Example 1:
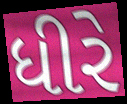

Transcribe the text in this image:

ધીરે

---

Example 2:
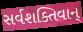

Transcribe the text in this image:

સર્વશક્તિવાન્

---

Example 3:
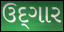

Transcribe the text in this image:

ઉદ્‌ગાર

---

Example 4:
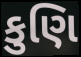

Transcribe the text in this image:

કુણિ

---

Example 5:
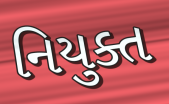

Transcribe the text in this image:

નિયુક્ત